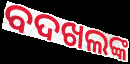
ବଦଖଲଙ୍କ